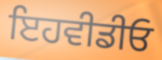
ਇਹਵੀਡੀਓ